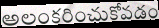
అలంకరించుకోవడం